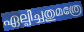
ഏല്പിച്ചതുമത്രേ